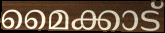
മൈക്കാട്